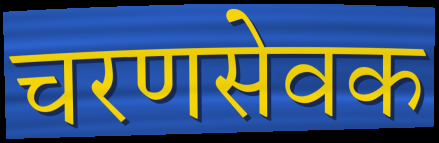
चरणसेवक